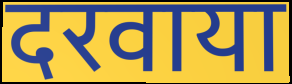
दरवाया